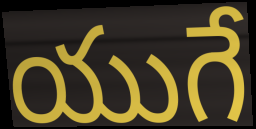
యుగే